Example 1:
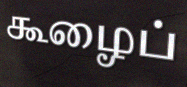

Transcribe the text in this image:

கூழைப்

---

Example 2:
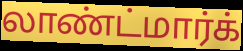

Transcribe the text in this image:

லாண்ட்மார்க்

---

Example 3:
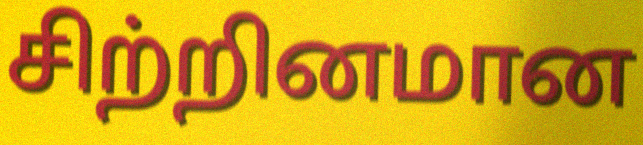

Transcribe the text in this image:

சிற்றினமான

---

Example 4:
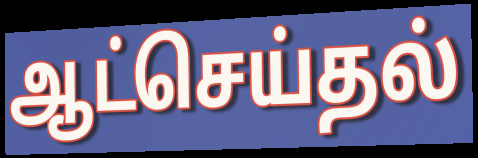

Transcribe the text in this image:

ஆட்செய்தல்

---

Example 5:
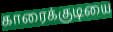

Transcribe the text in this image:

காரைக்குடியை